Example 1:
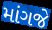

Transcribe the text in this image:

માંગજે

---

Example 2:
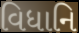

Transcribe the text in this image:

વિધાનિ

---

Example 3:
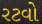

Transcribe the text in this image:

રટવો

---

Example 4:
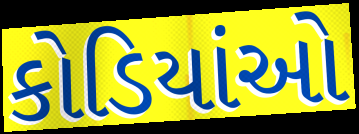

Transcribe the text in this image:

કોડિયાંઓ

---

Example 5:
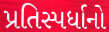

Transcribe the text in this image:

પ્રતિસ્પર્ધાનો